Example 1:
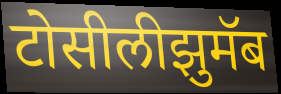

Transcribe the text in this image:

टोसीलीझुमॅब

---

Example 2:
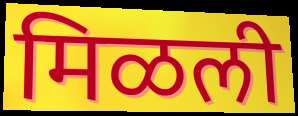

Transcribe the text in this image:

मिळली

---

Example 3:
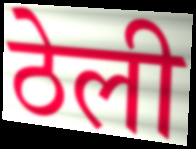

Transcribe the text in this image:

ठेली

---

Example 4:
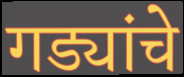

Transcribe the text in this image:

गड्यांचे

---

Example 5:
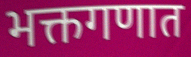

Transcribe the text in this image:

भक्तगणात